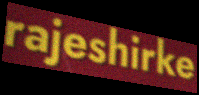
rajeshirke